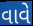
વાવે